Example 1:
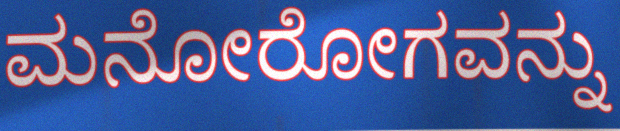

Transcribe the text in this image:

ಮನೋರೋಗವನ್ನು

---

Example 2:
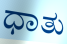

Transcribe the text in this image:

ಧಾತು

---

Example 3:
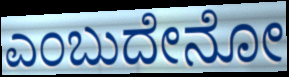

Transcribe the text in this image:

ಎಂಬುದೇನೋ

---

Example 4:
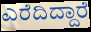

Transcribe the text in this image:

ಎರೆದಿದ್ದಾರೆ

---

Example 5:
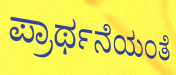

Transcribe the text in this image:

ಪ್ರಾರ್ಥನೆಯಂತೆ